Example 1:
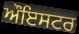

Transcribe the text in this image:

ਔਇਸਟਰ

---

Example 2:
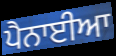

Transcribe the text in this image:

ਪੈਨਾਈਆ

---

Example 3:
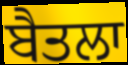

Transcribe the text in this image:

ਬੈਤਲਾ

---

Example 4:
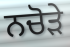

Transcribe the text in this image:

ਨਚੋੜੇ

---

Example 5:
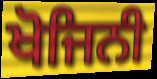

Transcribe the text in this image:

ਖੋਜਿਨੀ